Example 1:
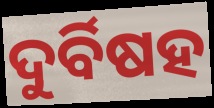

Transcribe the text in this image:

ଦୁର୍ବିଷହ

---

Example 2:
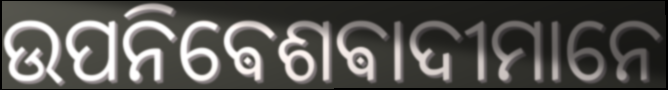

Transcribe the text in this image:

ଉପନିଵେଶଵାଦୀମାନେ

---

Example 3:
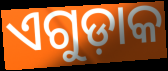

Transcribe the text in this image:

ଏଗୁଡ଼ାକ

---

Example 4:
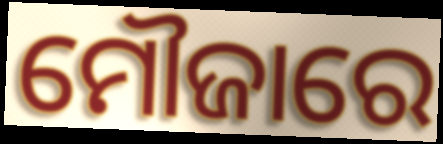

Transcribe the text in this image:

ମୌଜାରେ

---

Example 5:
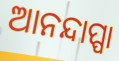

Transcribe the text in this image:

ଆନନ୍ଦାପ୍ପା